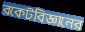
রকেটবিজ্ঞানের